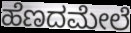
ಹೆಣದಮೇಲೆ